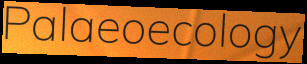
Palaeoecology